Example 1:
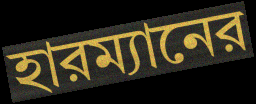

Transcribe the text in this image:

হারম্যানের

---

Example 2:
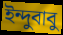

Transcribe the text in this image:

ইন্দুবাবু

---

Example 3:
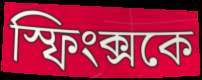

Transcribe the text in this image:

স্ফিংক্সকে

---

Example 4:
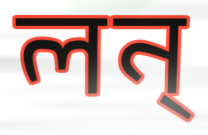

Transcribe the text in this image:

লন্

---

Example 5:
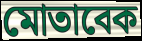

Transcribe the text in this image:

মোতাবেক